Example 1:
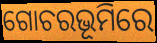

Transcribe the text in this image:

ଗୋଚରଭୂମିରେ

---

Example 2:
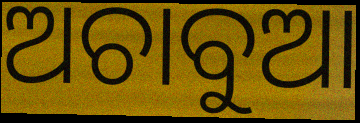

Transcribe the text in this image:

ଅଚାବୁଆ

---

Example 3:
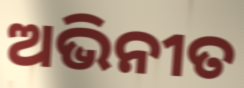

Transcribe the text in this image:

ଅଭିନୀତ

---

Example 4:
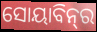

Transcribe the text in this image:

ସୋୟାବିନ୍‌ର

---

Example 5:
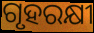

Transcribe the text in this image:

ଗୃହରକ୍ଷୀ